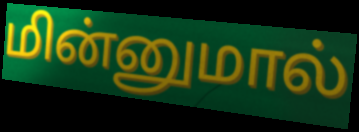
மின்னுமால்